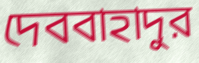
দেববাহাদুর